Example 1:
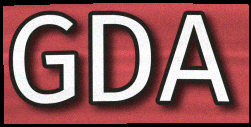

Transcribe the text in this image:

GDA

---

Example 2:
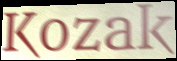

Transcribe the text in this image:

Kozak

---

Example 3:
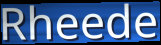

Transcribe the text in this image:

Rheede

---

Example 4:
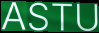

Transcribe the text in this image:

ASTU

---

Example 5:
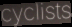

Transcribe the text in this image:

cyclists